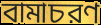
বামাচরণ